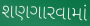
શણગારવામાં